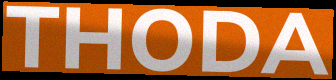
THODA